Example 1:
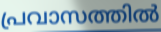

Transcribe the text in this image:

പ്രവാസത്തിൽ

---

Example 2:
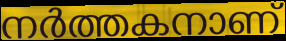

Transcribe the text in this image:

നർത്തകനാണ്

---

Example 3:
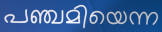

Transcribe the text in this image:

പഞ്ചമിയെന്ന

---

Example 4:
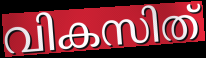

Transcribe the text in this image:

വികസിത്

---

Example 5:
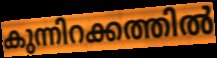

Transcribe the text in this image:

കുന്നിറക്കത്തിൽ